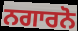
ਨਗਾਰਨੋ